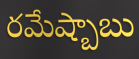
రమేష్బాబు